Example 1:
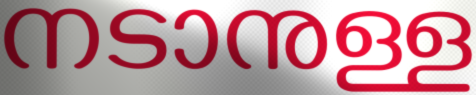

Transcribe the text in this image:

നടാനുള്ള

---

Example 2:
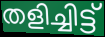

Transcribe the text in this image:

തളിച്ചിട്ട്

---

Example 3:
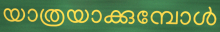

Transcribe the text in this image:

യാത്രയാക്കുമ്പോൾ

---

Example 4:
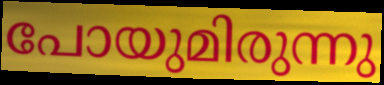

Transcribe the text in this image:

പോയുമിരുന്നു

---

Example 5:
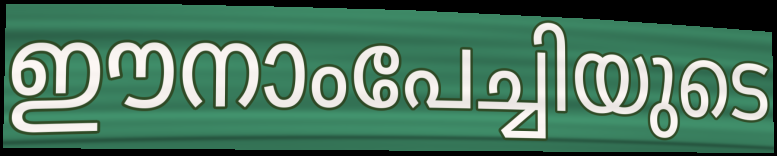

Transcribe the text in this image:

ഈനാംപേച്ചിയുടെ